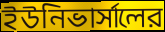
ইউনিভার্সালের